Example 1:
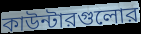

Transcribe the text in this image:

কাউন্টারগুলোর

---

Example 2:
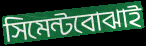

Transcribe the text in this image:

সিমেন্টবোঝাই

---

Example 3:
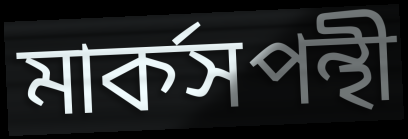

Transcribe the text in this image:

মার্কসপন্থী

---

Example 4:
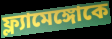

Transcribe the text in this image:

ফ্ল্যামেঙ্গোকে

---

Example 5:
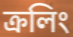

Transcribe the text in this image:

ক্রলিং